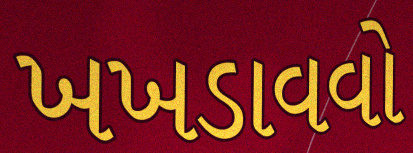
ખખડાવવો